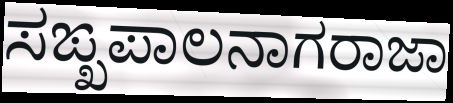
ಸಙ್ಖಪಾಲನಾಗರಾಜಾ